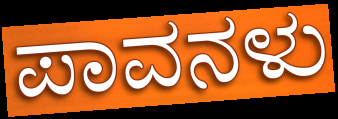
ಪಾವನಳು